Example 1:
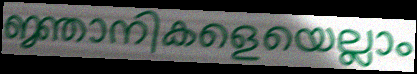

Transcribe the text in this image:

ജ്ഞാനികളെയെല്ലാം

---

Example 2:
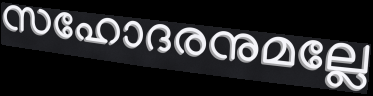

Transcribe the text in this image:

സഹോദരനുമല്ലേ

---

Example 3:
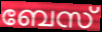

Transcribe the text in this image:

ബേസ്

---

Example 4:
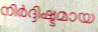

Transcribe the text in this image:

നിർദ്ദിഷ്ടമായ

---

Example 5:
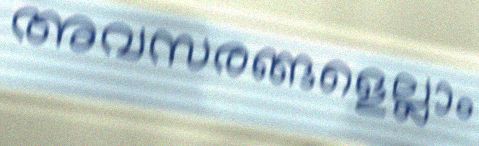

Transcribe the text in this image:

അവസരങ്ങളെല്ലാം